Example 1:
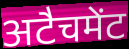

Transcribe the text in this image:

अटैचमेंट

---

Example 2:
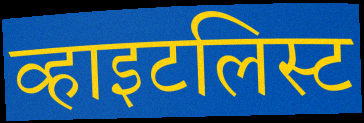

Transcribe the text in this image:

व्हाइटलिस्ट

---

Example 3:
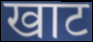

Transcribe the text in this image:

खाट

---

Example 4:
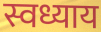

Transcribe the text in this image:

स्वध्याय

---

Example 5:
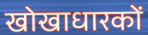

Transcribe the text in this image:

खोखाधारकों